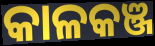
କାଳକଞ୍ଜ